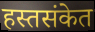
हस्तसंकेत